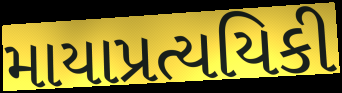
માયાપ્રત્યયિકી